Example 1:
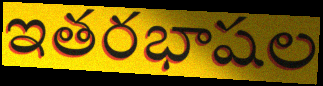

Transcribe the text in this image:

ఇతరభాషల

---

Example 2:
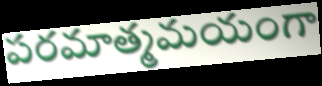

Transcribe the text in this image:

పరమాత్మమయంగా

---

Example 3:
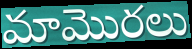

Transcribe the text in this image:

మామొరలు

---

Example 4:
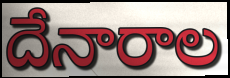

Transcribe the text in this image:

దేనారాల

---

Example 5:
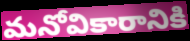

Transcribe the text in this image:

మనోవికారానికి